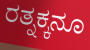
ರತ್ನಕ್ಕನೂ